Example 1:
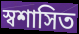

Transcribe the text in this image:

স্বশাসিত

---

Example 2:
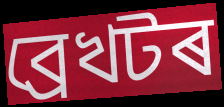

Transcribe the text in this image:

ব্ৰেখটৰ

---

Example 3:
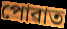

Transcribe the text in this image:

পোৱাত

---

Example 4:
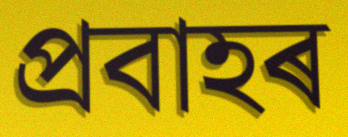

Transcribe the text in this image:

প্ৰবাহৰ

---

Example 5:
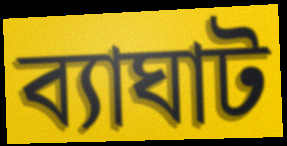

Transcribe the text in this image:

ব্যাঘাট